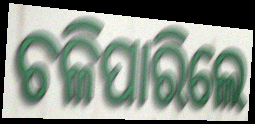
ଚଳିପାରିଲେ